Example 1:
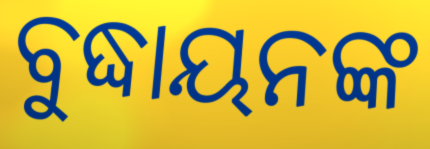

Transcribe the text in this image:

ବୁଦ୍ଧାୟନଙ୍କ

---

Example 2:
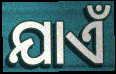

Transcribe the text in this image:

ଯାଏଁ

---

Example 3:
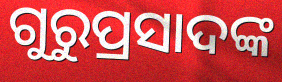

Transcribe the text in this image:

ଗୁରୁପ୍ରସାଦଙ୍କ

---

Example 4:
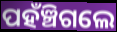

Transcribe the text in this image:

ପହଁଞ୍ଚିଗଲେ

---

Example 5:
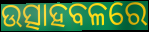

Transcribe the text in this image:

ଉତ୍ସାହବଳରେ